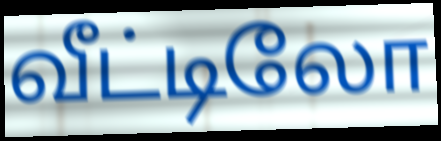
வீட்டிலோ